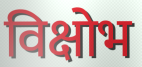
विक्षोभ